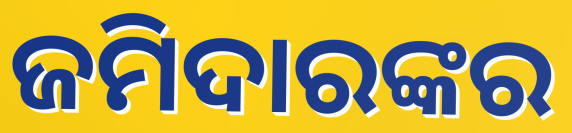
ଜମିଦାରଙ୍କର